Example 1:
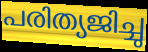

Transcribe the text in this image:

പരിത്യജിച്ചു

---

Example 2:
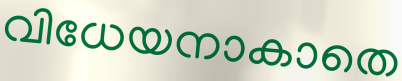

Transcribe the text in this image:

വിധേയനാകാതെ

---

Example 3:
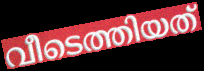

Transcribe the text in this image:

വീടെത്തിയത്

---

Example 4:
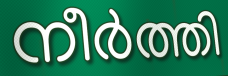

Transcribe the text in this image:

നീർത്തി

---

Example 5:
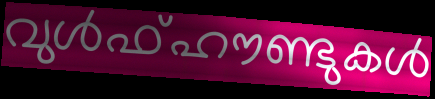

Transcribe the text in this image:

വുൾഫ്ഹൗണ്ടുകൾ